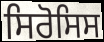
ਸਿਰੋਸਿਸ